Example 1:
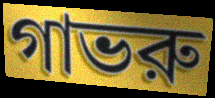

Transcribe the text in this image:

গাভরু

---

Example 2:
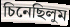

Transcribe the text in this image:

চিনেছিলুম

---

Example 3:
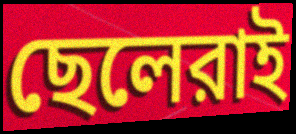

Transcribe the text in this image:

ছেলেরাই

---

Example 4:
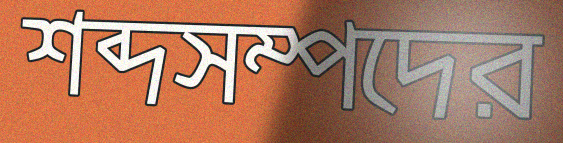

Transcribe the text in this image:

শব্দসম্পদের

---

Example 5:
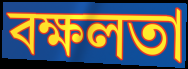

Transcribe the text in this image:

বক্ষলতা